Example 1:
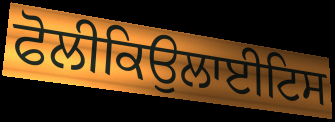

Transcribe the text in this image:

ਫੋਲੀਕਿਉਲਾਈਟਿਸ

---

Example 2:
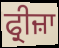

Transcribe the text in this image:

ਫ੍ਰੀਜ਼ਾ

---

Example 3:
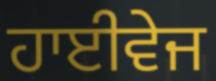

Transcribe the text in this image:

ਹਾਈਵੇਜ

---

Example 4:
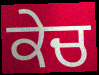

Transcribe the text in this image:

ਕੇਚ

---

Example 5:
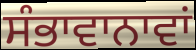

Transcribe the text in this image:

ਸੰਭਾਵਾਨਾਵਾਂ